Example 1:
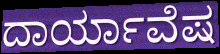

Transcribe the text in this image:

ದಾರ್ಯಾವೆಷ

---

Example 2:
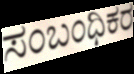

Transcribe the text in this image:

ಸಂಬಂಧಿಕರ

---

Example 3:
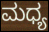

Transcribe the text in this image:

ಮಧ್ಯ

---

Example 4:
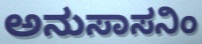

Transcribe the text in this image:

ಅನುಸಾಸನಿಂ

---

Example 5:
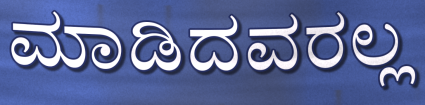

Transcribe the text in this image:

ಮಾಡಿದವರಲ್ಲ